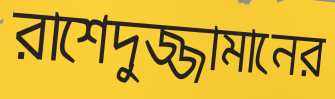
রাশেদুজ্জামানের